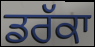
ਡਰੱਕਾ